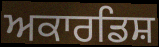
ਅਕਾਰਡਿਸ਼